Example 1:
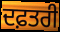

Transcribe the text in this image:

ਦਫ਼ਤਰੀ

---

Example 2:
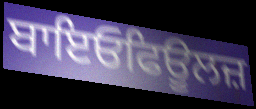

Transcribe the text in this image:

ਬਾਇਓਫਿਊਲਜ਼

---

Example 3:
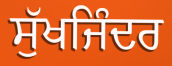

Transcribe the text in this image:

ਸੁੱਖਜਿੰਦਰ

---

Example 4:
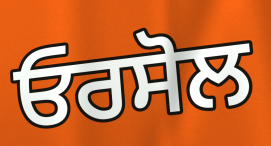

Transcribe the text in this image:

ਓਰਸੋਲ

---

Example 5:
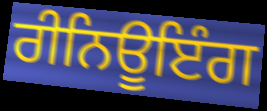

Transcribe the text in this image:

ਰੀਨਿਊਇੰਗ